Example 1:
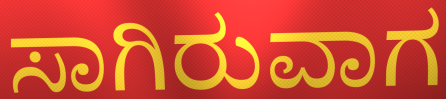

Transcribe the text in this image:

ಸಾಗಿರುವಾಗ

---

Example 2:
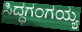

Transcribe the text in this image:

ಸಿದ್ಧಗಂಗಯ್ಯ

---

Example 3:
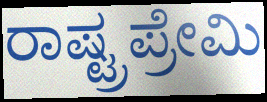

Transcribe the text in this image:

ರಾಷ್ಟ್ರಪ್ರೇಮಿ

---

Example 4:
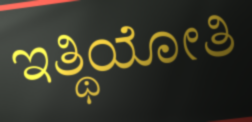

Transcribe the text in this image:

ಇತ್ಥಿಯೋತಿ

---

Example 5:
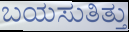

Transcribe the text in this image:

ಬಯಸುತಿತ್ತು